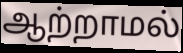
ஆற்றாமல்